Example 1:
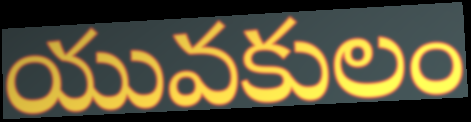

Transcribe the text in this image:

యువకులం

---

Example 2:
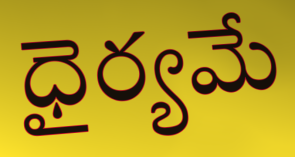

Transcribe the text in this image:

ధైర్యమే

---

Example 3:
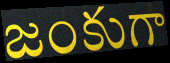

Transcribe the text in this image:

జంకుగా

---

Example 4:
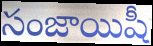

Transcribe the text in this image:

సంజాయిషీ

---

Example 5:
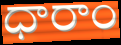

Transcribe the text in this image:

ధారాం